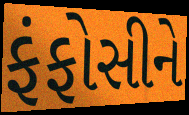
ફંફોસીને